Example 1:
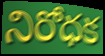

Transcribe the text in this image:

నిరోధక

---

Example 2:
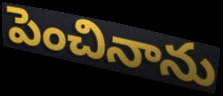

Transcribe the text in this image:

పెంచినాను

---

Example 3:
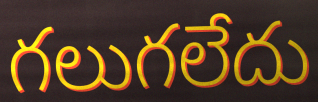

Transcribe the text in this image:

గలుగలేదు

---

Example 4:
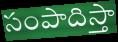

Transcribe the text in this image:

సంపాదిస్తా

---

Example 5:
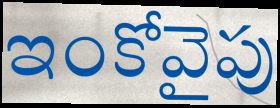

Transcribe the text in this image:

ఇంకోవైపు